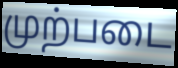
முற்படை